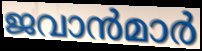
ജവാൻമാർ